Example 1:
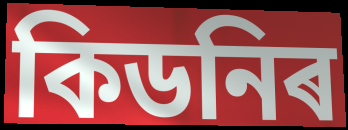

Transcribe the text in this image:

কিডনিৰ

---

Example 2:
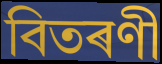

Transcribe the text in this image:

বিতৰণী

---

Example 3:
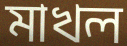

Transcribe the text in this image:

মাখল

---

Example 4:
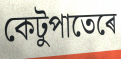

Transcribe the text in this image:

কেটুপাতেৰে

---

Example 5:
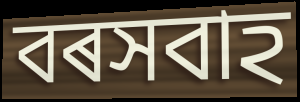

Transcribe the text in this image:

বৰসবাহ